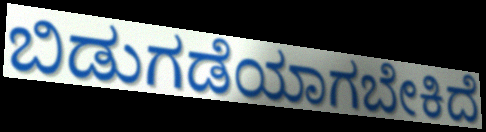
ಬಿಡುಗಡೆಯಾಗಬೇಕಿದೆ